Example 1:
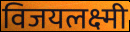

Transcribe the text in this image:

विजयलक्ष्मी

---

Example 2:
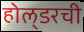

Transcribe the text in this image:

होल्डरची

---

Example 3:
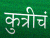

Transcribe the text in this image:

कुत्रीचं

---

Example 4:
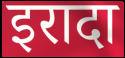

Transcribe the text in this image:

इरादा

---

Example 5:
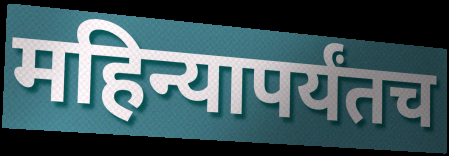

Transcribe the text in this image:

महिन्यापर्यंतच